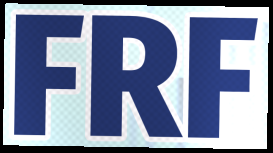
FRF